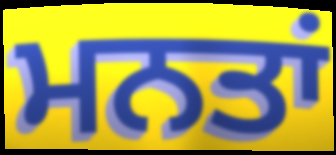
ਮਨਤਾਂ